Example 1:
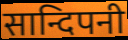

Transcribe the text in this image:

सान्दिपनी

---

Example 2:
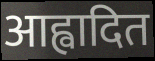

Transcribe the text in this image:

आह्वादित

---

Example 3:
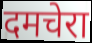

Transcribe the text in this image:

दमचेरा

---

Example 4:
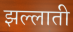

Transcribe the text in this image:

झल्लाती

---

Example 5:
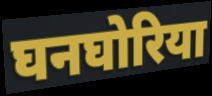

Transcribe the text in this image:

घनघोरिया